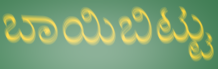
ಬಾಯಿಬಿಟ್ಟು